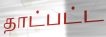
தாட்பட்ட